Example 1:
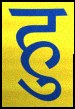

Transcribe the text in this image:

हु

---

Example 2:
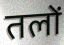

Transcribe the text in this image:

तलों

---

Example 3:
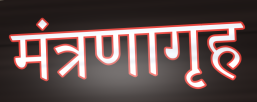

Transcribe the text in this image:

मंत्रणागृह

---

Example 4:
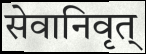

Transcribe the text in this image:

सेवानिवृत्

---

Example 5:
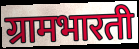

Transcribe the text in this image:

ग्रामभारती